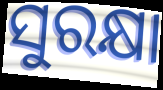
ସୁରକ୍ଷା